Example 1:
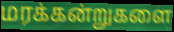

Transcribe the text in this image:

மரக்கன்றுகளை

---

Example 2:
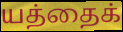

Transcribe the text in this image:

யத்தைக்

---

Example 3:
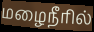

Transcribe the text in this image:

மழைநீரில்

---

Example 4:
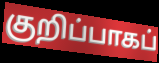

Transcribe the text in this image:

குறிப்பாகப்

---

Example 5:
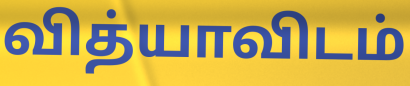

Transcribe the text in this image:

வித்யாவிடம்